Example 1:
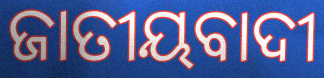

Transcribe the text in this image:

ଜାତୀୟବାଦୀ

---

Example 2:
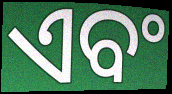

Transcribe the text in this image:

ଏବଂ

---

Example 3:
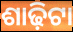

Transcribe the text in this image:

ଶାଢ଼ିଟା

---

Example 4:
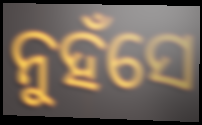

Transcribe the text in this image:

ନୁହଁସେ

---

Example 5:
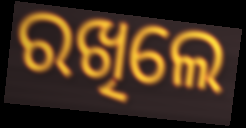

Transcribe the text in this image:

ରଖିଲେ